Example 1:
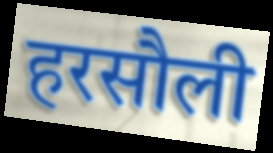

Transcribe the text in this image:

हरसौली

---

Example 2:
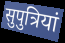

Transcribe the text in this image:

सुपुत्रियां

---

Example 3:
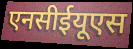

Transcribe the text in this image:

एनसीईयूएस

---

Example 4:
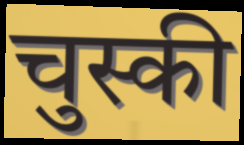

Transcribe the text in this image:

चुस्की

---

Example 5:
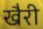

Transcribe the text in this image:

खैरी